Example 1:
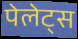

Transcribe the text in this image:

पेलेट्स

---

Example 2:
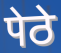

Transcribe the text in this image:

पेठे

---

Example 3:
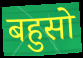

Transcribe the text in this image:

बहुसो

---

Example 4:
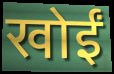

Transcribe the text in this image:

खोईं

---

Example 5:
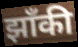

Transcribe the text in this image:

झाँकी